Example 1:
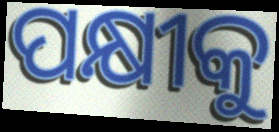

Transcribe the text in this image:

ପକ୍ଷୀକୁ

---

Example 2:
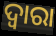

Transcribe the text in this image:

ଦ୍ବାରା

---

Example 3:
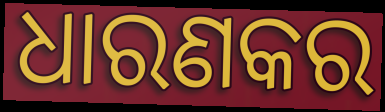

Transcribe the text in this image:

ଧାରଣକର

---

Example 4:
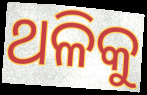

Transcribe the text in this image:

ଥଳିକୁ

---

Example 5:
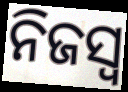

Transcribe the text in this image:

ନିଜସ୍ୱ